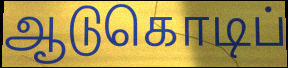
ஆடுகொடிப்